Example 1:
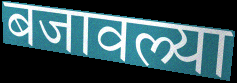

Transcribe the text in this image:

बजावल्या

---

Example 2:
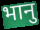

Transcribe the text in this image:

भानु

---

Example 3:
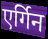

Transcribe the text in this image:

एर्गिन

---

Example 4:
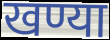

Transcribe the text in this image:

खण्या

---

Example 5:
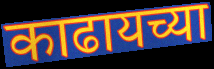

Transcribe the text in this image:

काढायच्या